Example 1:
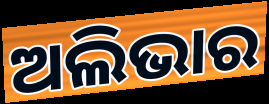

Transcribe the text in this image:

ଅଲିଭାର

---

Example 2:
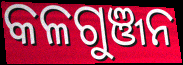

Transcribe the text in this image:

କଳଗୁଞ୍ଜନ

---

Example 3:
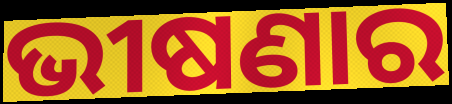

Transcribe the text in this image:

ଭୀଷଣାର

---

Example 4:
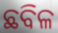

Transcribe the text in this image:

ଛବିଳ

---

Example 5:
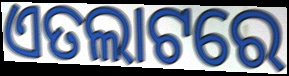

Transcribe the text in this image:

ଏତଲାଟରେ